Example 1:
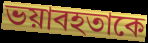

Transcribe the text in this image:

ভয়াবহতাকে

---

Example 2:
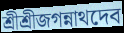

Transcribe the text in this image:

শ্রীশ্রীজগন্নাথদেব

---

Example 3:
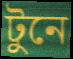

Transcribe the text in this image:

টুনে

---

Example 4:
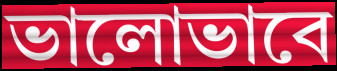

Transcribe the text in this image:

ভালোভাবে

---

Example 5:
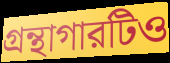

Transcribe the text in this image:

গ্রন্থাগারটিও